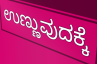
ಉಣ್ಣುವುದಕ್ಕೆ